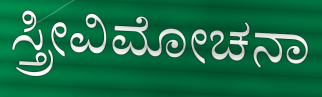
ಸ್ತ್ರೀವಿಮೋಚನಾ